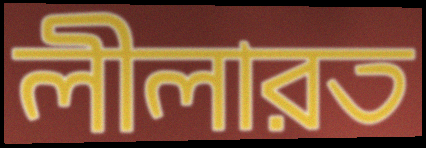
লীলারত